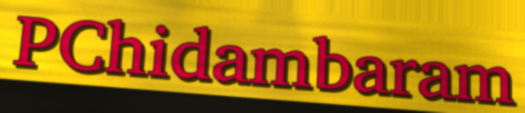
PChidambaram